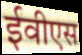
ईवीएस